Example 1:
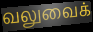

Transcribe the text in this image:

வலுவைக்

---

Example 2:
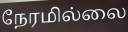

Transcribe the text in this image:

நேரமில்லை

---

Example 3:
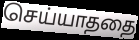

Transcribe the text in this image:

செய்யாததை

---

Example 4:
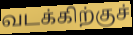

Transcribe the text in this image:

வடக்கிற்குச்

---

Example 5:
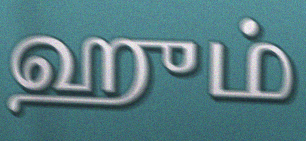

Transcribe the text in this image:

ஹும்